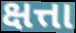
ક્ષત્તા